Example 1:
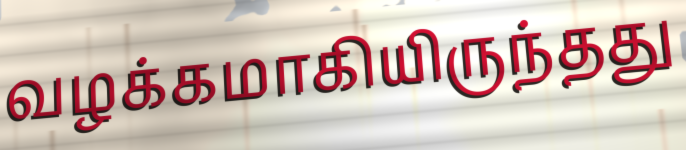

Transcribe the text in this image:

வழக்கமாகியிருந்தது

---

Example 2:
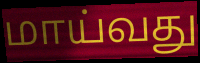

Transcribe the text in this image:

மாய்வது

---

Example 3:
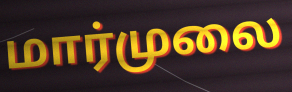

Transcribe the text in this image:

மார்முலை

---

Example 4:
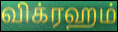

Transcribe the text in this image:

விக்ரஹம்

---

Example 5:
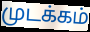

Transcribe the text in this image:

முடக்கம்